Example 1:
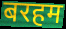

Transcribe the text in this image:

बरहम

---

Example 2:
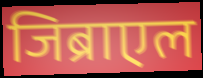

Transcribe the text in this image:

जिब्राएल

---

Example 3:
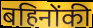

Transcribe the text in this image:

बहिनोंकी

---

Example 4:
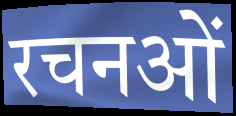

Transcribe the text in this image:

रचनओं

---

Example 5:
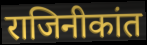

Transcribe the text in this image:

राजिनीकांत